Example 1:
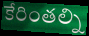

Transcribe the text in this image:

కేరింతల్ని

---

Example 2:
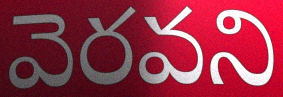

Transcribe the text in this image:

వెరవని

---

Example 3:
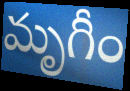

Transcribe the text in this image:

మృగీం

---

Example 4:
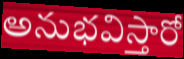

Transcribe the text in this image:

అనుభవిస్తారో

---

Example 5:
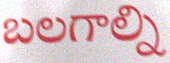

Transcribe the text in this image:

బలగాల్ని